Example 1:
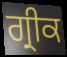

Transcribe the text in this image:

ਗ੍ਰੀਕ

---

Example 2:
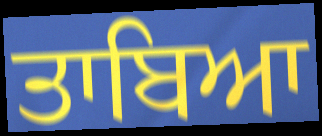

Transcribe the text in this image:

ਤਾਬਿਆ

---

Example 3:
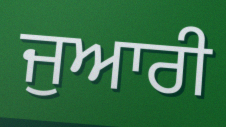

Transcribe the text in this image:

ਜੁਆਰੀ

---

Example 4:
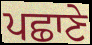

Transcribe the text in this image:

ਪਛਾਣੇ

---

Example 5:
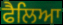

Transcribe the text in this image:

ਫੈਲਿਆ